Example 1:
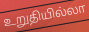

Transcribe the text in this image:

உறுதியில்லா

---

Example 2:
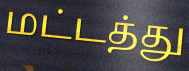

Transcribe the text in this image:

மட்டத்து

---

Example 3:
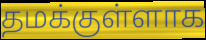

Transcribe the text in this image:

தமக்குள்ளாக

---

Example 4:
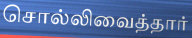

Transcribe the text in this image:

சொல்லிவைத்தார்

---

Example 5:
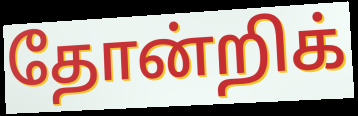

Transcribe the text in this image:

தோன்றிக்